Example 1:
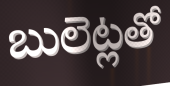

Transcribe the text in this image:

బులెట్లతో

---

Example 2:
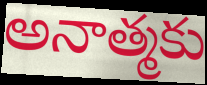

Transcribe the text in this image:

అనాత్మకు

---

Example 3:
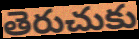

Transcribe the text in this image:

తెరుచుకు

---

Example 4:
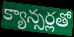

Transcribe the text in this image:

క్యాన్సర్లతో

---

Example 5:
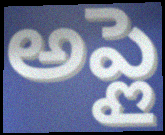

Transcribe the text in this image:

అప్లై